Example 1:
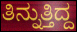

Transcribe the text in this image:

ತಿನ್ನುತ್ತಿದ್ದ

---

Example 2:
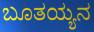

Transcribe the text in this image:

ಬೂತಯ್ಯನ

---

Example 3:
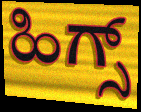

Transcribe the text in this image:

ಹಿಗ್ಸ್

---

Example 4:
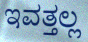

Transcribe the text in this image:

ಇವತ್ತಲ್ಲ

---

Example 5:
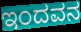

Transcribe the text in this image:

ಇಂದವನ